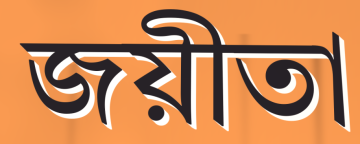
জয়ীতা